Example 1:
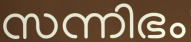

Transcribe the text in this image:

സന്നിഭം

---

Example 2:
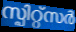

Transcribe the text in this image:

സ്പിറ്റ്സർ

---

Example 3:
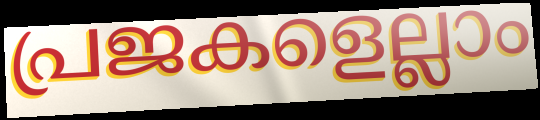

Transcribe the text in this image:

പ്രജകളെല്ലാം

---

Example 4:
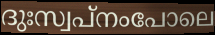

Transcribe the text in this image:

ദുഃസ്വപ്നംപോലെ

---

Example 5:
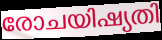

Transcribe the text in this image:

രോചയിഷ്യതി